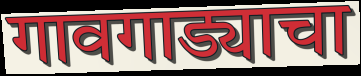
गावगाड्याचा